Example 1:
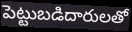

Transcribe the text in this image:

పెట్టుబడిదారులతో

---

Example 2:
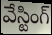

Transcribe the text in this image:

వేస్టింగ్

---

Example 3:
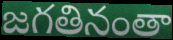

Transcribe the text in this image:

జగతినంతా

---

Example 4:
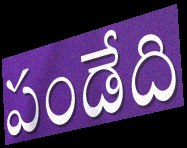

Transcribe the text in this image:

పండేది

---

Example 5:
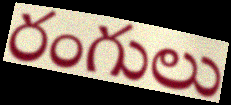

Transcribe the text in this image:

రంగులు